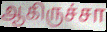
ஆகிருச்சா